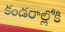
కండరాల్లోకి